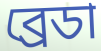
ব্রেডা